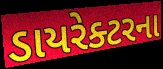
ડાયરેક્ટરના